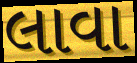
લાવા